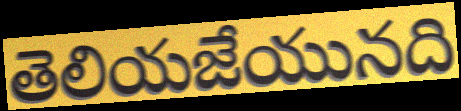
తెలియజేయునది